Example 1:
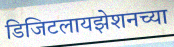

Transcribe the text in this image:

डिजिटलायझेशनच्या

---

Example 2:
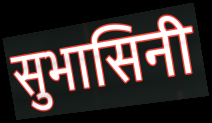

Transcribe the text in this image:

सुभासिनी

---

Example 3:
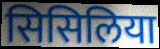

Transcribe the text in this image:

सिसिलिया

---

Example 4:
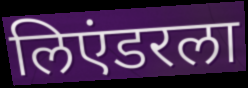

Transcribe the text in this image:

लिएंडरला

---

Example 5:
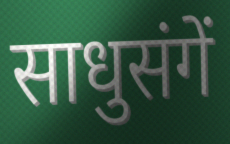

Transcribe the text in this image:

साधुसंगें